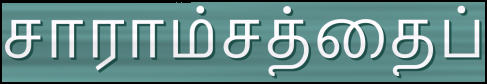
சாராம்சத்தைப்